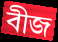
বীজ